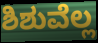
ಶಿಶುವೆಲ್ಲ